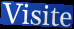
Visite